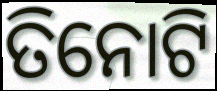
ତିନୋଟି